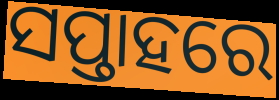
ସପ୍ତାହରେ